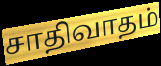
சாதிவாதம்